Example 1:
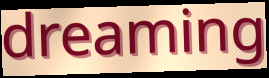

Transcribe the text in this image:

dreaming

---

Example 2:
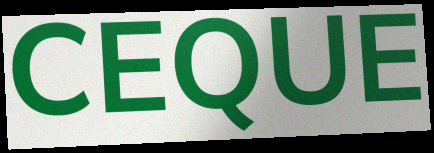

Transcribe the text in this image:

CEQUE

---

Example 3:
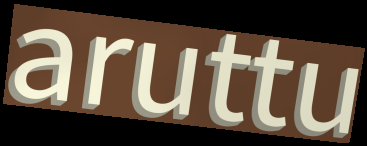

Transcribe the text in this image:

aruttu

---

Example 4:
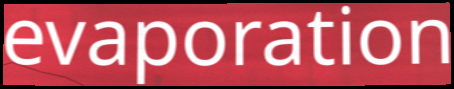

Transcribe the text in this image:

evaporation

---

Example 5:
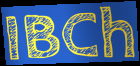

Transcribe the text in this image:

IBCh